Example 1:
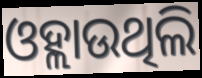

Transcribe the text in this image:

ଓହ୍ଲାଉଥିଲି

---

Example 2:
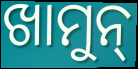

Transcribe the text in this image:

ଖାମୁନ୍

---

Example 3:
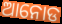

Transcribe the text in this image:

ଆନୋଡ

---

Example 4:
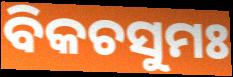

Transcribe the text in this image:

ବିକଚସୁମଃ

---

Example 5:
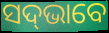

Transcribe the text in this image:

ସଦ୍‌ଭାବେ